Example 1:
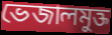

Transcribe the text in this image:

ভেজালমুক্ত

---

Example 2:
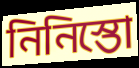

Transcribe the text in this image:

নিনিস্তো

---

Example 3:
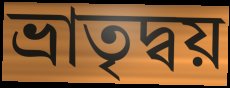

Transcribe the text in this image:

ভ্রাতৃদ্বয়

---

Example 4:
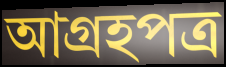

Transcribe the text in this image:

আগ্রহপত্র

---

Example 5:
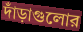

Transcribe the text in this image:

দাঁড়াগুলোর